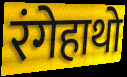
रंगेहाथो